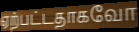
ஏற்பட்டதாகவோ